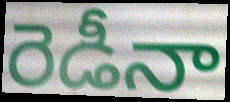
రెడీనా